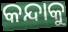
କନ୍ଦାକୁ